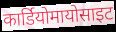
कार्डियोमायोसाइट